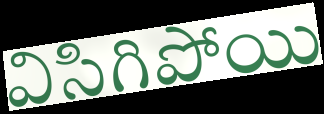
విసిగిపోయి